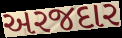
અરજદાર